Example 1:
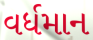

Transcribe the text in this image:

વર્ધમાન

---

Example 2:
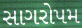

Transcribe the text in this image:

સાગરોપમ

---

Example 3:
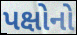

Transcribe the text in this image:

પક્ષોનો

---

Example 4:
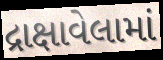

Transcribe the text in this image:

દ્રાક્ષાવેલામાં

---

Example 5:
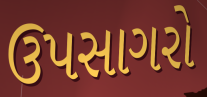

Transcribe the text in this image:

ઉપસાગરો